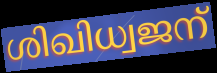
ശിഖിധ്വജന്